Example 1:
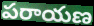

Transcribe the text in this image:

పరాయణ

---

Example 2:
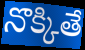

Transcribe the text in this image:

నొక్కితే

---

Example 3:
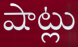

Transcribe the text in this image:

షాట్లు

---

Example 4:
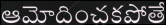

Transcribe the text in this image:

ఆమోదించకపోతే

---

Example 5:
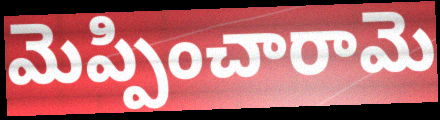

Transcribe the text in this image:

మెప్పించారామె